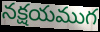
నక్షయముగ